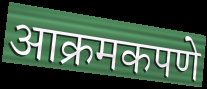
आक्रमकपणे